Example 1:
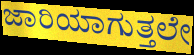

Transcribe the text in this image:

ಜಾರಿಯಾಗುತ್ತಲೇ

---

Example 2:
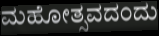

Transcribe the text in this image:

ಮಹೋತ್ಸವದಂದು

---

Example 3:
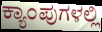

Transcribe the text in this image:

ಕ್ಯಾಂಪುಗಳಲ್ಲಿ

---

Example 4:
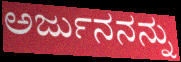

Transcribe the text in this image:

ಅರ್ಜುನನನ್ನು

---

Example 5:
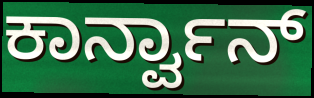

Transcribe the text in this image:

ಕಾರ್ನ್ವಾನ್